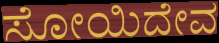
ಸೋಯಿದೇವ